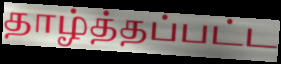
தாழ்த்தப்பட்ட